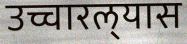
उच्चारल्यास